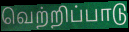
வெற்றிப்பாடு